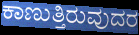
ಕಾಣುತ್ತಿರುವುದರ